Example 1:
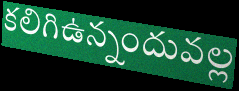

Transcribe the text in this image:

కలిగిఉన్నందువల్ల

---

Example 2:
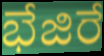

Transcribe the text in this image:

భేజిరే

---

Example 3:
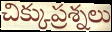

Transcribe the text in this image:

చిక్కుప్రశ్నలు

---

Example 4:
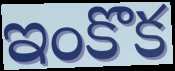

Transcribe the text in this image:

ఇంకొక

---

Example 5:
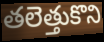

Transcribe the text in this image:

తలెత్తుకొని